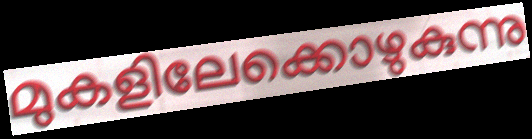
മുകളിലേക്കൊഴുകുന്നു